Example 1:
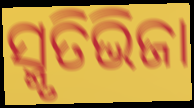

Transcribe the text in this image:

ସ୍ମୃତିଭିଜା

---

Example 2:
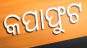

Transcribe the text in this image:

କପାଫୁଟ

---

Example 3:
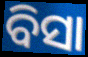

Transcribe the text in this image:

ବିସା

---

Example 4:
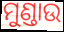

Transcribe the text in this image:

ମୁଣ୍ଡାଉ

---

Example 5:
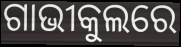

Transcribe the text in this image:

ଗାଭୀକୁଲରେ